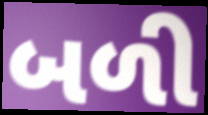
બળી